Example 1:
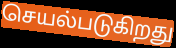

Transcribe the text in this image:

செயல்படுகிறது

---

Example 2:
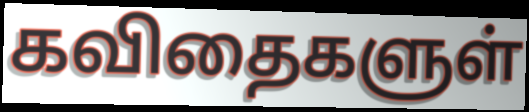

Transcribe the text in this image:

கவிதைகளுள்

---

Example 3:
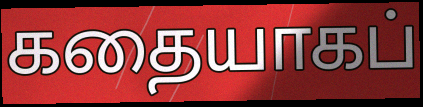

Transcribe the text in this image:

கதையாகப்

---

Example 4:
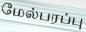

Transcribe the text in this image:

மேல்பரப்பு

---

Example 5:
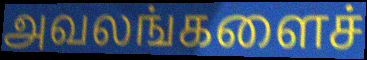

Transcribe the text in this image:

அவலங்களைச்